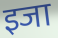
इजा